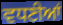
ਵਧਣੀਆਂ